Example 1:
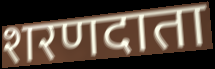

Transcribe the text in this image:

शरणदाता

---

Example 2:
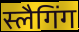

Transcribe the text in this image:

स्लैगिंग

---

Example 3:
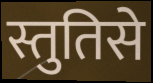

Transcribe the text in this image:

स्तुतिसे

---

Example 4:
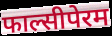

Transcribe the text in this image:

फाल्सीपेरम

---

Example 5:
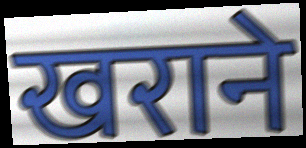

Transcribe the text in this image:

खराने